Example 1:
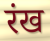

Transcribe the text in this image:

रंख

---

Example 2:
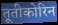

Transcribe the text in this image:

तूतीकोरिन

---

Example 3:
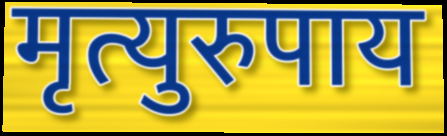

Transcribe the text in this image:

मृत्युरुपाय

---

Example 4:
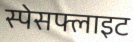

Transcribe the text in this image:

स्पेसफ्लाइट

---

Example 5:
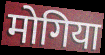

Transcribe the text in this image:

मोगिया